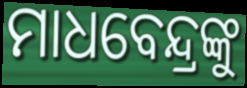
ମାଧବେନ୍ଦ୍ରଙ୍କୁ